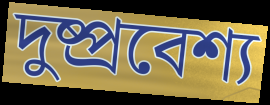
দুষ্প্রবেশ্য